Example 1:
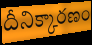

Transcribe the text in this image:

దీనిక్కారణం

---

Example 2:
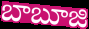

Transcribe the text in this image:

బాబూజి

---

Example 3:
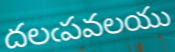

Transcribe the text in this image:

దలఁపవలయు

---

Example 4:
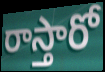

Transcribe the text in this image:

రాస్తారో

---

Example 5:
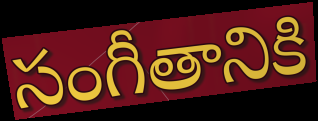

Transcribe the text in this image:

సంగీతానికి